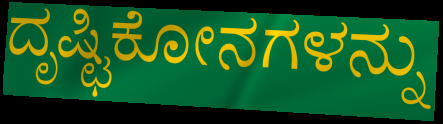
ದೃಷ್ಟಿಕೋನಗಳನ್ನು